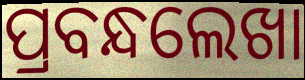
ପ୍ରବନ୍ଧଲେଖା